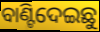
ବାଣ୍ଟିଦେଇଛୁ